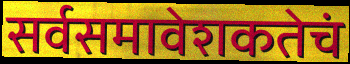
सर्वसमावेशकतेचं